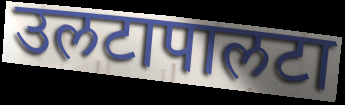
उलटापालटा